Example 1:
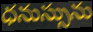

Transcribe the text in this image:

ధనుస్సును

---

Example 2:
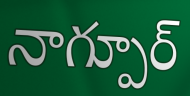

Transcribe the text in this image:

నాగ్పూర్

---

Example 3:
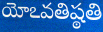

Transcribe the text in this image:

యోఽవతిష్ఠతి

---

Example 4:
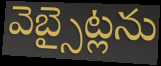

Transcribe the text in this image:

వెబ్సైట్లను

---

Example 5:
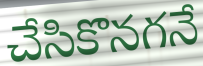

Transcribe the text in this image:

చేసికొనగనే